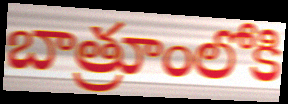
బాత్రూంలోకి